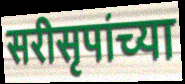
सरीसृपांच्या